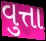
વુત્તા